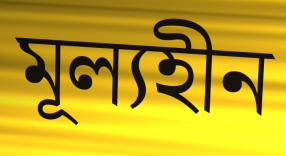
মূল্যহীন